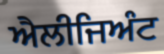
ਐਲੀਜਿਅੰਟ